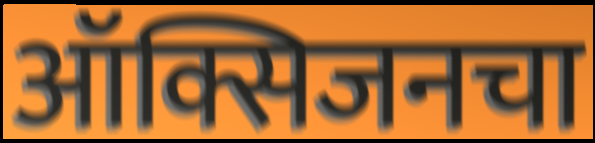
ऑक्सिजनचा